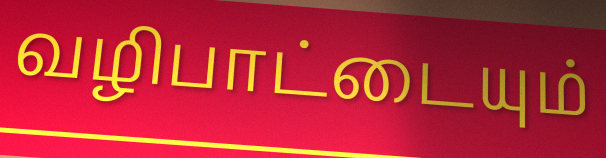
வழிபாட்டையும்